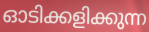
ഓടിക്കളിക്കുന്ന